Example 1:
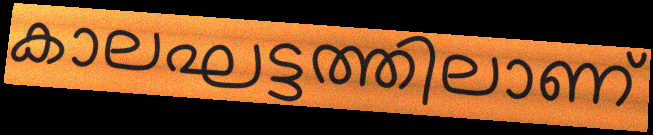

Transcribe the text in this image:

കാലഘട്ടത്തിലാണ്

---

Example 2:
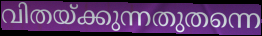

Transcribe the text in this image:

വിതയ്ക്കുന്നതുതന്നെ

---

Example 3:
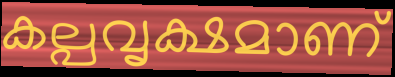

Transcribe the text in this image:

കല്പവൃക്ഷമാണ്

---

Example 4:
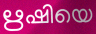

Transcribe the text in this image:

ഋഷിയെ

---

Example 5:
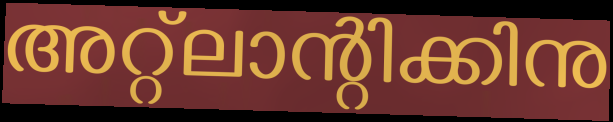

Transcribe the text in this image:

അറ്റ്ലാന്റിക്കിനു